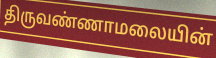
திருவண்ணாமலையின்